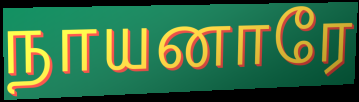
நாயனாரே